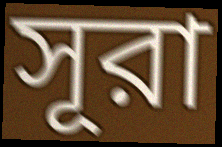
সূরা